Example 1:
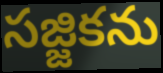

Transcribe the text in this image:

సజ్జికను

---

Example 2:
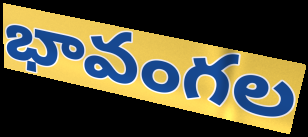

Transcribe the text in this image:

భావంగల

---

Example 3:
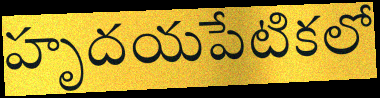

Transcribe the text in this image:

హృదయపేటికలో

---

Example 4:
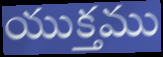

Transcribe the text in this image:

యుక్తము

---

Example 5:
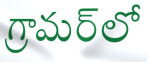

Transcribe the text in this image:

గ్రామర్‌లో